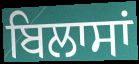
ਬਿਲਾਸਾਂ